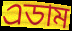
এডাম